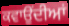
ਕਵਾਉਂਦੀਆਂ